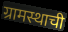
ग्रामस्थाची